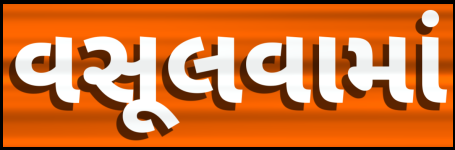
વસૂલવામાં